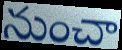
నుంచా